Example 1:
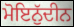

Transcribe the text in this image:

ਮੋਇਨੁੱਦੀਨ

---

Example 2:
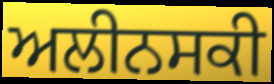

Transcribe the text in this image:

ਅਲੀਨਸਕੀ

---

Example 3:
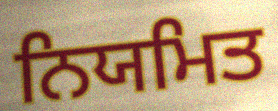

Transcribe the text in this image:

ਨਿਯਮਿਤ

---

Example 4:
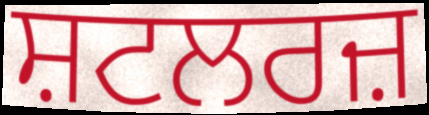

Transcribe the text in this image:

ਸ਼ਟਲਰਜ਼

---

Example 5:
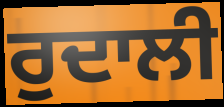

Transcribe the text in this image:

ਰੁਦਾਲੀ